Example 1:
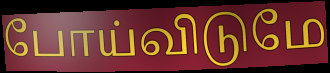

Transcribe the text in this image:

போய்விடுமே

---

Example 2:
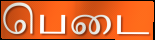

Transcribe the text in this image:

பெடை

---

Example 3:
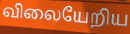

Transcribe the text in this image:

விலையேறிய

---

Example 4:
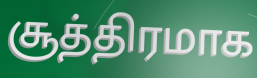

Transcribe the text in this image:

சூத்திரமாக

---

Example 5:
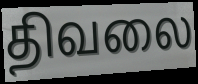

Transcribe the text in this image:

திவலை